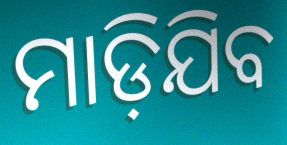
ମାଡ଼ିଯିବ